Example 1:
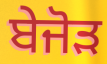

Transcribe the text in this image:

ਬੇਜੋੜ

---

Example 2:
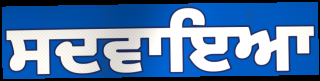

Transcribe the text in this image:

ਸਦਵਾਇਆ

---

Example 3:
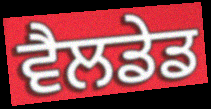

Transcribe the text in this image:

ਵੈਲਡੇਡ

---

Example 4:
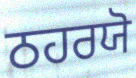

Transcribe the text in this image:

ਠਹਰਯੋ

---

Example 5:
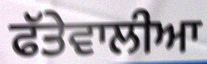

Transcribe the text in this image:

ਫੱਤੇਵਾਲੀਆ